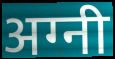
अग्नी